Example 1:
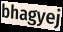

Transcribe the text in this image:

bhagyej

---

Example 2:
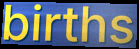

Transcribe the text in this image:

births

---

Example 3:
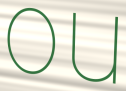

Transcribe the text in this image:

ou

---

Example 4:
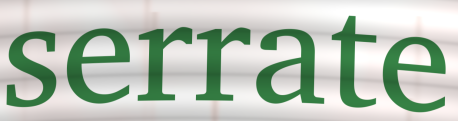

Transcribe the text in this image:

serrate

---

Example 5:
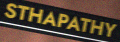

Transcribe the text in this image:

STHAPATHY